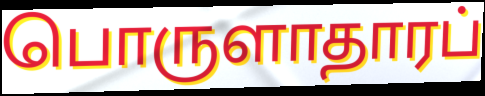
பொருளாதாரப்